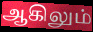
ஆகிலும்